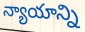
న్యాయాన్ని